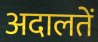
अदालतें